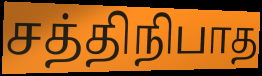
சத்திநிபாத